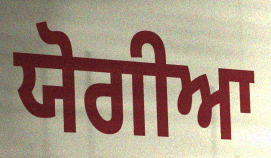
ਯੋਗੀਆ